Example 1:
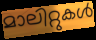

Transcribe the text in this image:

മാലിറ്റുകൾ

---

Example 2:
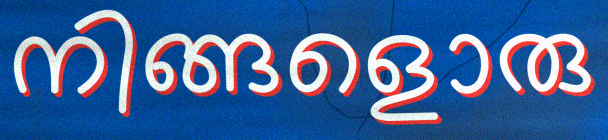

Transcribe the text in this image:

നിങ്ങളൊരു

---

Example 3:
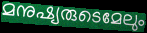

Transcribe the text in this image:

മനുഷ്യരുടെമേലും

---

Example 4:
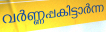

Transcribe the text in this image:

വർണ്ണപ്പകിട്ടാർന്ന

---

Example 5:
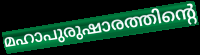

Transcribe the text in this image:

മഹാപുരുഷാരത്തിന്റെ